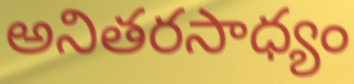
అనితరసాధ్యం